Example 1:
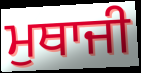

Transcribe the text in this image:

ਮੁਥਾਜੀ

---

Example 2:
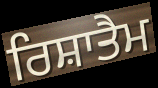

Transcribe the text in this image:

ਰਿਸ਼ਾਤੈਮ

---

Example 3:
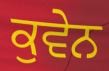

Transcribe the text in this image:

ਕੁਵੇਨ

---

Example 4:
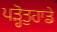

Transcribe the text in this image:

ਪੜ੍ਹੋਤੁਹਾਡੇ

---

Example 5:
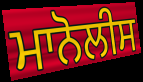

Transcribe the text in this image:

ਮਾਨੋਲੀਸ